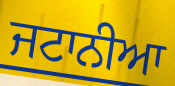
ਜਟਾਨੀਆ